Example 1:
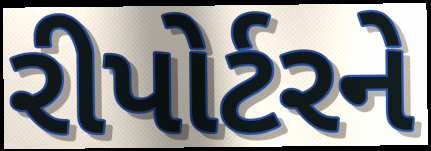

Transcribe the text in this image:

રીપોર્ટરને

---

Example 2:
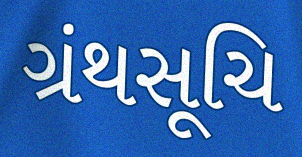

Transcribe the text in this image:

ગ્રંથસૂચિ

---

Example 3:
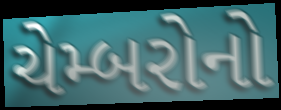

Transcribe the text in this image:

ચેમ્બરોનો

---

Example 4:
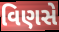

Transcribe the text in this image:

વિણસે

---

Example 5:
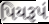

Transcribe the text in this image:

પિયરૂપં